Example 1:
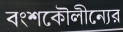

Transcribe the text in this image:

বংশকৌলীন্যের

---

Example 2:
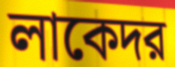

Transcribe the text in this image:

লাকেদর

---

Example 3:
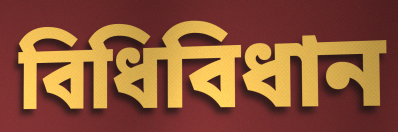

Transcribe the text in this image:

বিধিবিধান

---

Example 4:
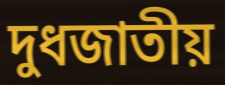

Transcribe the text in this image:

দুধজাতীয়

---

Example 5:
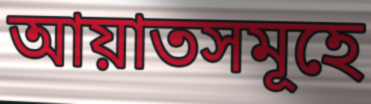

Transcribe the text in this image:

আয়াতসমূহে